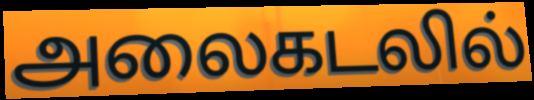
அலைகடலில்